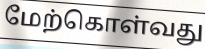
மேற்கொள்வது